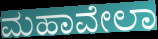
ಮಹಾವೇಲಾ